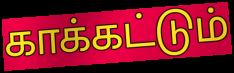
காக்கட்டும்